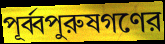
পূর্ব্বপুরুষগণের